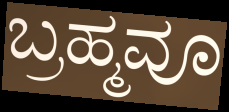
ಬ್ರಹ್ಮವೂ